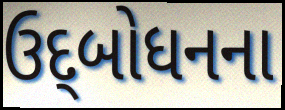
ઉદ્‌બોધનના